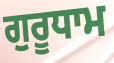
ਗੁਰੂਧਾਮ